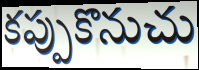
కప్పుకొనుచు